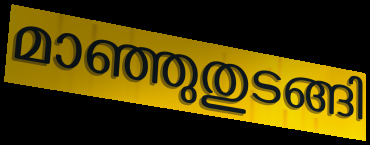
മാഞ്ഞുതുടങ്ങി